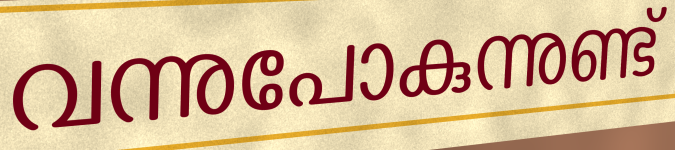
വന്നുപോകുന്നുണ്ട്